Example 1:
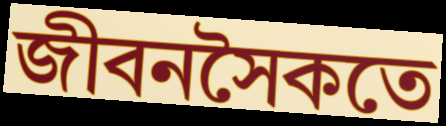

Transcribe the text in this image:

জীবনসৈকতে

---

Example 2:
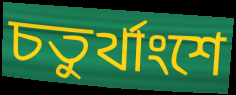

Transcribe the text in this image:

চতুর্থাংশে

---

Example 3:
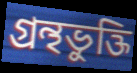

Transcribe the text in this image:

গ্রন্থভুক্তি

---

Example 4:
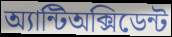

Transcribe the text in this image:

অ্যান্টিঅক্সিডেন্ট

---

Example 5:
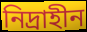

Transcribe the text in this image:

নিদ্রাহীন